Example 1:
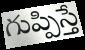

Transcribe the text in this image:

గుప్పిస్తే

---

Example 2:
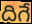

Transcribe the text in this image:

దిగే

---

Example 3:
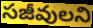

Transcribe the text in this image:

సజీవులని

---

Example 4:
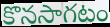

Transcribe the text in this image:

కొనసాగటం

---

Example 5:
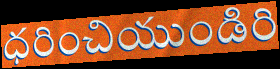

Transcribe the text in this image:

ధరించియుండిరి